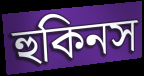
হুকিনস